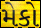
મેકો